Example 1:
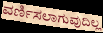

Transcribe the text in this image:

ವರ್ಣಿಸಲಾಗುವುದಿಲ್ಲ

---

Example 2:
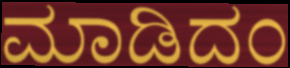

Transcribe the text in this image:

ಮಾಡಿದಂ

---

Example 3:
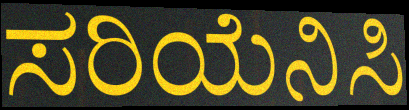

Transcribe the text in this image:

ಸರಿಯೆನಿಸಿ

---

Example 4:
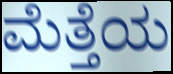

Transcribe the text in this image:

ಮೆತ್ತೆಯ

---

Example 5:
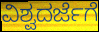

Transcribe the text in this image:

ವಿಶ್ವದರ್ಜೆಗೆ